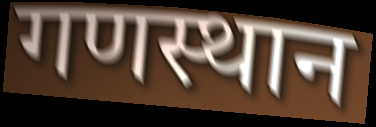
गणस्थान